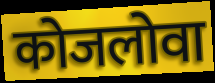
कोजलोवा